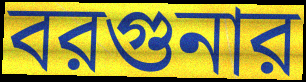
বরগুনার